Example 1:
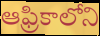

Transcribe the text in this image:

ఆఫ్రికాలోని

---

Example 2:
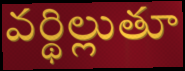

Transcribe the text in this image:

వర్థిల్లుతూ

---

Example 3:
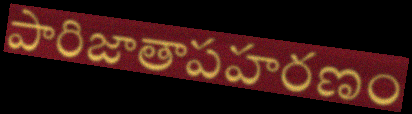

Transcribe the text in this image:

పారిజాతాపహరణం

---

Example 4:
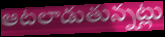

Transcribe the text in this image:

ఆటలాడుతున్నట్లు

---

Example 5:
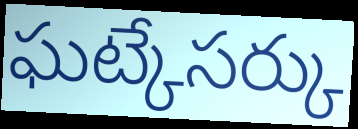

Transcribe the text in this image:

ఘట్కేసర్కు